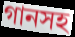
গানসহ